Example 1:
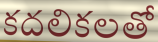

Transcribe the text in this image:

కదలికలతో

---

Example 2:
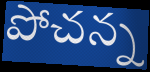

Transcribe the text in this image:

పోచన్న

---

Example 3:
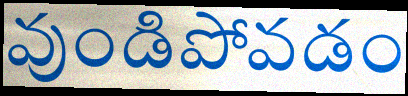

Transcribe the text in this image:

వుండిపోవడం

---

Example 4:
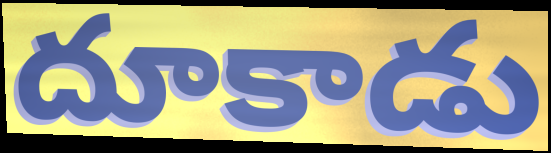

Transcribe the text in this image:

దూకాడు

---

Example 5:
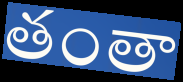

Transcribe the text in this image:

తంతా